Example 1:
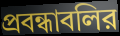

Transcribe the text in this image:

প্রবন্ধাবলির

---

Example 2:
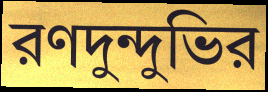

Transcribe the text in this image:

রণদুন্দুভির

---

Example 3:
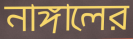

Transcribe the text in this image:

নাঙ্গালের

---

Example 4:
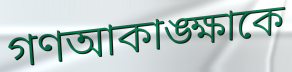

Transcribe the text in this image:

গণআকাঙ্ক্ষাকে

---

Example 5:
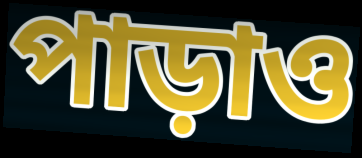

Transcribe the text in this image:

পাড়াও